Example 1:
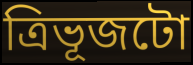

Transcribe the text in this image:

ত্ৰিভূজটো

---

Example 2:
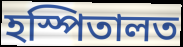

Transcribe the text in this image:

হস্পিতালত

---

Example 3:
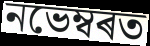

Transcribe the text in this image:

নভেম্বৰত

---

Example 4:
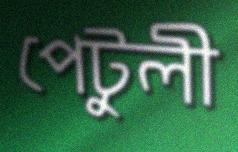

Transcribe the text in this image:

পেটুলী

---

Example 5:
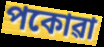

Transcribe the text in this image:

পকোৱা